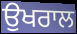
ਉਖਰਾਲ